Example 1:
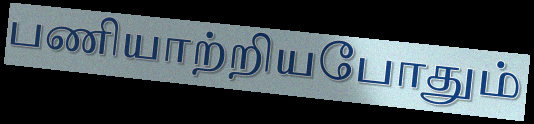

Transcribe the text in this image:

பணியாற்றியபோதும்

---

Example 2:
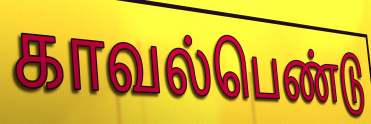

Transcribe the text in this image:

காவல்பெண்டு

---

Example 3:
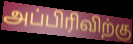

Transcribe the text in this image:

அப்பிரிவிற்கு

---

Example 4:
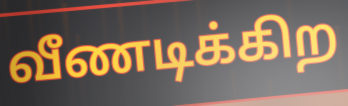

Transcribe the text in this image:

வீணடிக்கிற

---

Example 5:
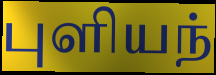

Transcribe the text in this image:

புளியந்